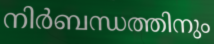
നിർബന്ധത്തിനും